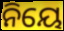
ନିୟେ